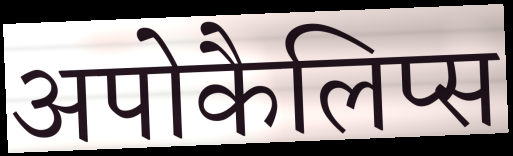
अपोकैलिप्स